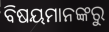
ବିଷୟମାନଙ୍କରୁ